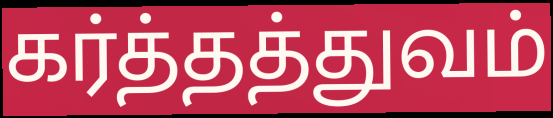
கர்த்தத்துவம்